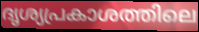
ദൃശ്യപ്രകാശത്തിലെ